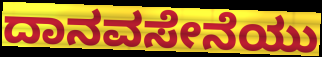
ದಾನವಸೇನೆಯು